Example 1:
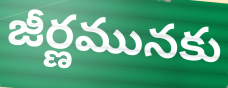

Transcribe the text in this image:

జీర్ణమునకు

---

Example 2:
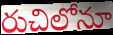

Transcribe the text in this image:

రుచిలోనూ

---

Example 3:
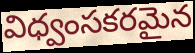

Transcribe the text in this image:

విధ్వంసకరమైన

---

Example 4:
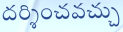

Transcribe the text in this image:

దర్శించవచ్చు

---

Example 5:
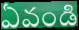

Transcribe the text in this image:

ఏవండి